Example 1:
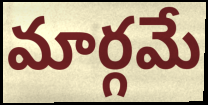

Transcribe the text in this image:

మార్గమే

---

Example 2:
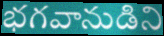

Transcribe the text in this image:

భగవానుడిని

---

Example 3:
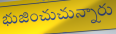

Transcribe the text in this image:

భుజించుచున్నారు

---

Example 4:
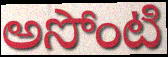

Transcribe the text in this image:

అసోంటి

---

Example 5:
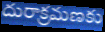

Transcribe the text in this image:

దురాక్రమణకు